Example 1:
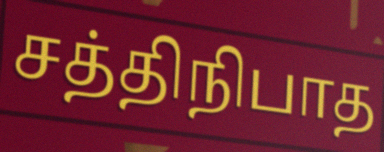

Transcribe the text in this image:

சத்திநிபாத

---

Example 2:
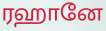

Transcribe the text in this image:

ரஹானே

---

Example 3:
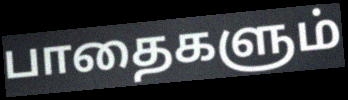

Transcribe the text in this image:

பாதைகளும்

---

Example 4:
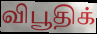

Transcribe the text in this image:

விபூதிக்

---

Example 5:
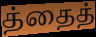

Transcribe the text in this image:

த்தைத்